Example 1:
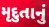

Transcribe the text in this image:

મૃદુતાનું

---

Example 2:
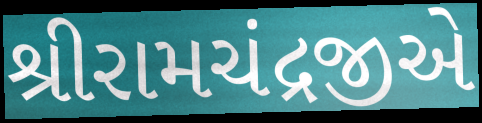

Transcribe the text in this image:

શ્રીરામચંદ્રજીએ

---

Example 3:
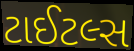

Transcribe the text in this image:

ટાઈટલ્સ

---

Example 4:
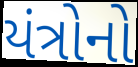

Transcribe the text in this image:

યંત્રોનો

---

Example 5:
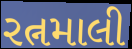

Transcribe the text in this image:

રત્નમાલી